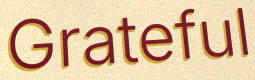
Grateful